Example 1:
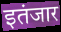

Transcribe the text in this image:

इतंजार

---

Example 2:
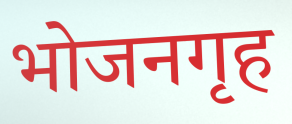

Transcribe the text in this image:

भोजनगृह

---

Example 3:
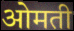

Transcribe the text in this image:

ओमती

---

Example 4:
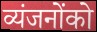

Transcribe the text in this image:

व्यंजनोंको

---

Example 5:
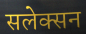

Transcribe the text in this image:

सलेक्सन